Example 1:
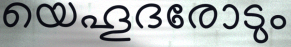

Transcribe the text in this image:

യെഹൂദരോടും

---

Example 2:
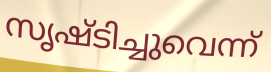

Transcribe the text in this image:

സൃഷ്ടിച്ചുവെന്ന്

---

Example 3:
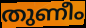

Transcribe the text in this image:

തുണീം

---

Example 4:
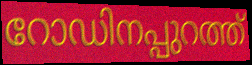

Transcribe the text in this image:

റോഡിനപ്പുറത്ത്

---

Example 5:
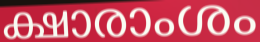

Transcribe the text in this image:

ക്ഷാരാംശം